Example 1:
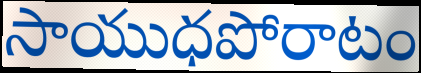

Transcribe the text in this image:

సాయుధపోరాటం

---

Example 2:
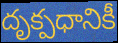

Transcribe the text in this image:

దృక్పధానికీ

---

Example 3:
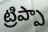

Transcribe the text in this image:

ట్రిప్పా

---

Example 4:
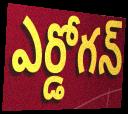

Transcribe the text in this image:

ఎర్డోగన్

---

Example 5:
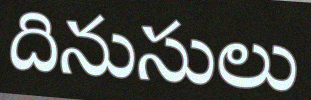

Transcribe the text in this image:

దినుసులు